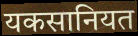
यकसानियत